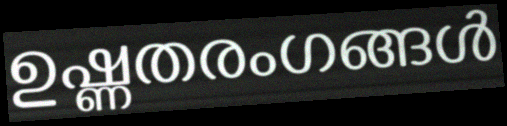
ഉഷ്ണതരംഗങ്ങൾ